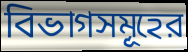
বিভাগসমূহের